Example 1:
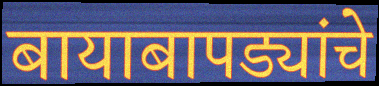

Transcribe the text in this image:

बायाबापड्यांचे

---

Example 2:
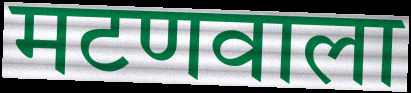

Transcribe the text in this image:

मटणवाला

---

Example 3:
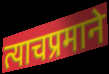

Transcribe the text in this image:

त्याचप्रमाने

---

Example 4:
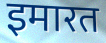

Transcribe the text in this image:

इमारत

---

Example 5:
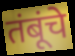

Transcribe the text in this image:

तंबूंचे